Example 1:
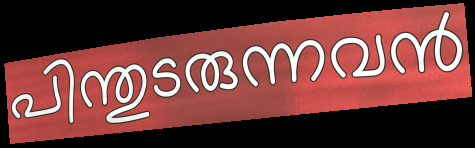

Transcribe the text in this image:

പിന്തുടരുന്നവൻ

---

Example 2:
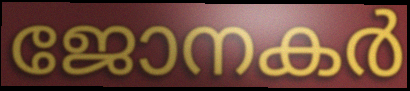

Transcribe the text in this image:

ജോനകർ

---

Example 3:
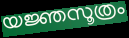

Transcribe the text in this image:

യജ്ഞസൂത്രം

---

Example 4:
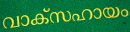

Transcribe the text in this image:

വാക്സഹായം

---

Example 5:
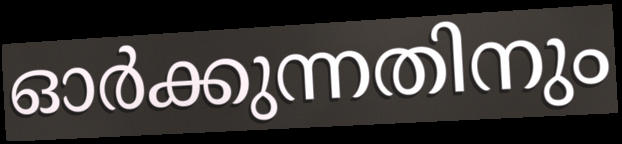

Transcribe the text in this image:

ഓർക്കുന്നതിനും